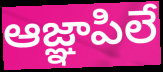
ఆజ్ఞాపిలే